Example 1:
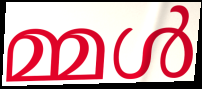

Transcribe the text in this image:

മ്മൾ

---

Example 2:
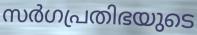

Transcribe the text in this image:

സർഗപ്രതിഭയുടെ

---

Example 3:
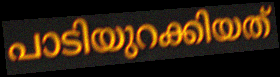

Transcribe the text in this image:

പാടിയുറക്കിയത്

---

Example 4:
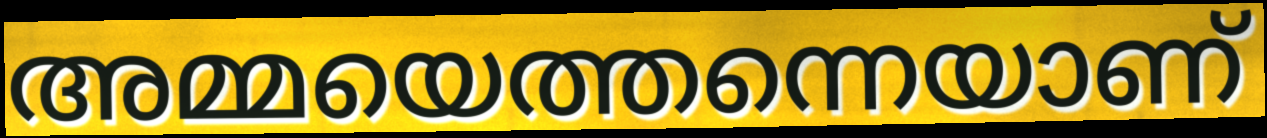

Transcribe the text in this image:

അമ്മയെത്തന്നെയാണ്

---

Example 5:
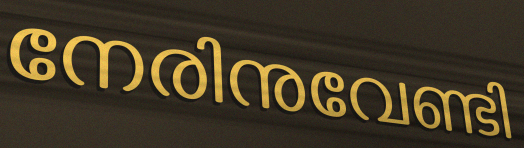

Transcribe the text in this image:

നേരിനുവേണ്ടി